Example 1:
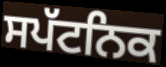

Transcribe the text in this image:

ਸਪੱਟਨਿਕ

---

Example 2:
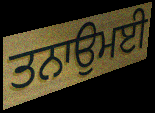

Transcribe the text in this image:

ਤਨਾਉਮਈ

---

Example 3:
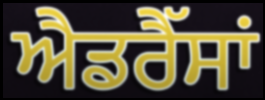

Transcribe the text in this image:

ਐਡਰੈੱਸਾਂ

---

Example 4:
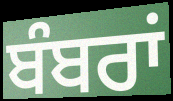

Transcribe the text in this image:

ਬੰਬਰਾਂ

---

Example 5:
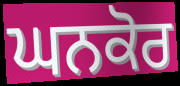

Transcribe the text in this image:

ਘਨਕੋਰ